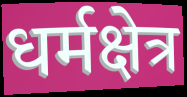
धर्मक्षेत्र